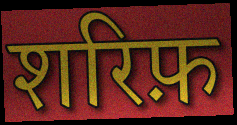
शरिफ़